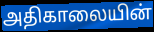
அதிகாலையின்